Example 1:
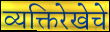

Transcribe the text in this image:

व्यक्तिरेखेचे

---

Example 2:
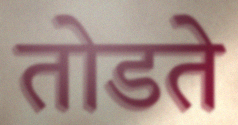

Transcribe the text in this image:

तोडते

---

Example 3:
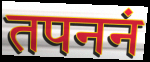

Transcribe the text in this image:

तपननं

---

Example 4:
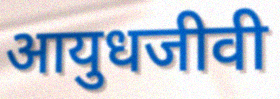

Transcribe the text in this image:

आयुधजीवी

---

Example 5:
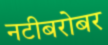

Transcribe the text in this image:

नटीबरोबर